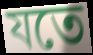
যতে